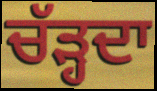
ਚੱੜ੍ਹਦਾ